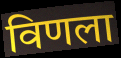
विणला